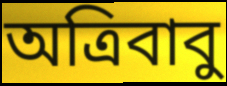
অত্রিবাবু